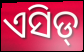
ଏସିଡ୍